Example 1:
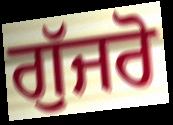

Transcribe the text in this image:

ਗੁੱਜਰੋ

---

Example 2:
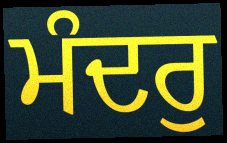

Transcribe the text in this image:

ਮੰਦਰੁ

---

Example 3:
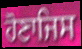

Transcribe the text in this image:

ਹੋਣਾਜਿਸ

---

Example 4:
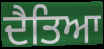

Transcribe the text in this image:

ਦੈਤਿਆ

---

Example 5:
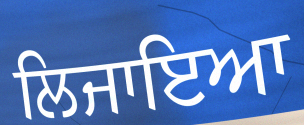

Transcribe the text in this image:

ਲਿਜਾਇਆ